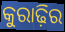
କୁରାଢ଼ିର